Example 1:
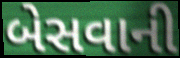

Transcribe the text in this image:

બેસવાની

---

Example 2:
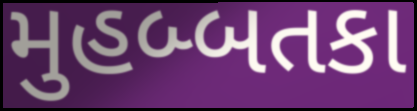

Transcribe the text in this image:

મુહબ્બતકા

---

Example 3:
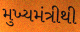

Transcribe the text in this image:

મુખ્યમંત્રીથી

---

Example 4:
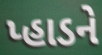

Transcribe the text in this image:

પ્હાડને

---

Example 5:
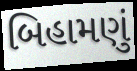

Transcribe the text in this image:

બિહામણું